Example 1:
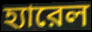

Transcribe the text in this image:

হ্যারেল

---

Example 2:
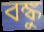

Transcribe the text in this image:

বঙ্কু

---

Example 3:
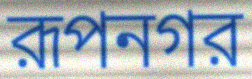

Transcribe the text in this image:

রূপনগর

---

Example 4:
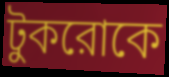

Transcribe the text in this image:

টুকরোকে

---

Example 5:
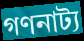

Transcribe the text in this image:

গণনাট্য